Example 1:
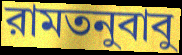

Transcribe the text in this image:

রামতনুবাবু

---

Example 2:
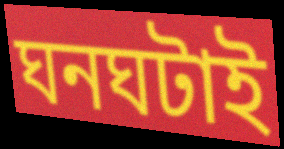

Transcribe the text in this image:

ঘনঘটাই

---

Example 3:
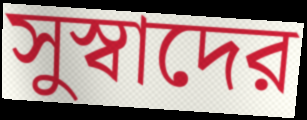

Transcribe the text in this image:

সুস্বাদের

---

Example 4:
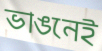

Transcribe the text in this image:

ভাঙনেই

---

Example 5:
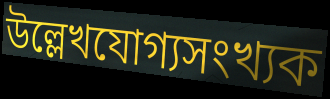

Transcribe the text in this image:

উল্লেখযোগ্যসংখ্যক